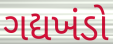
ગદ્યખંડો